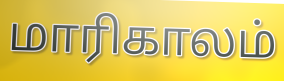
மாரிகாலம்